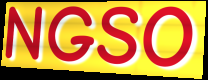
NGSO